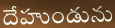
దేహుండును